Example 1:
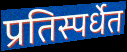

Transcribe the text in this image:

प्रतिस्पर्धेत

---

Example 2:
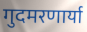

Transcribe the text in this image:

गुदमरणार्या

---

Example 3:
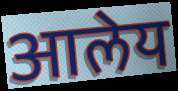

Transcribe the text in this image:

आलेय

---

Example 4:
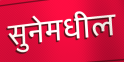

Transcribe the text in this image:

सुनेमधील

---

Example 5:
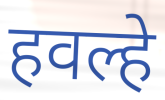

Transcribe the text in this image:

हवल्हे